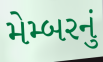
મેમ્બરનું